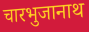
चारभुजानाथ